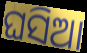
ଘସିଆ